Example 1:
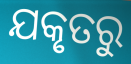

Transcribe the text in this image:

ଯକୃତରୁ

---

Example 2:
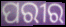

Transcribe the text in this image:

ପରୀର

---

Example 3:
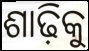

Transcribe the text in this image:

ଶାଢ଼ିକୁ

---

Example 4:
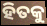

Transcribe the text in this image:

ହିତକୁ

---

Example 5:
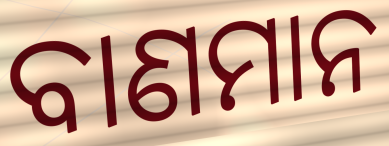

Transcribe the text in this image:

ବାଣମାନ